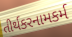
તીર્થકરનામકર્મ